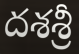
దశశ్రీ